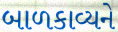
બાળકાવ્યને